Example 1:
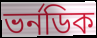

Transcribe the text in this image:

ভর্নডিক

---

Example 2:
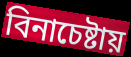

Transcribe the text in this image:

বিনাচেষ্টায়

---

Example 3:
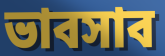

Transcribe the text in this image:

ভাবসাব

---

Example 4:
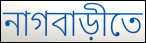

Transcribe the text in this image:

নাগবাড়ীতে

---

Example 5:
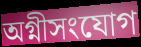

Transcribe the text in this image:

অগ্নীসংযোগ